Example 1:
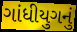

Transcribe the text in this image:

ગાંધીયુગનું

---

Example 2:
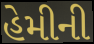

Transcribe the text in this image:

હેમીની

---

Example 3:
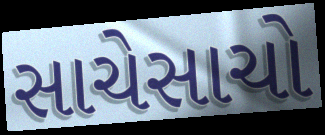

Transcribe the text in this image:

સાચેસાચો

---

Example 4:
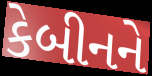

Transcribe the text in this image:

કેબીનને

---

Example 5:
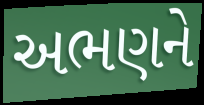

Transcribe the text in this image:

અભણને